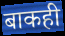
बाकही